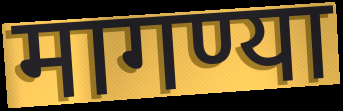
मागण्या